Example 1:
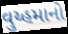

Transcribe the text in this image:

વુય્હમાનો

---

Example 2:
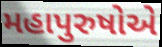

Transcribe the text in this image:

મહાપુરુષોએ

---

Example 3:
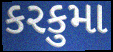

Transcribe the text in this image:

કરકુમા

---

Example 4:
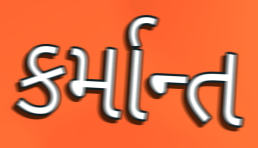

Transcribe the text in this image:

કર્માન્ત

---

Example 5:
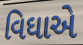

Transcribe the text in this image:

વિઘાએ